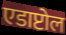
एडाप्टोल